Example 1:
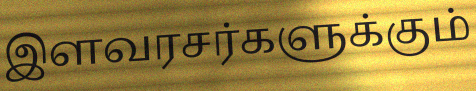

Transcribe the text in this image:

இளவரசர்களுக்கும்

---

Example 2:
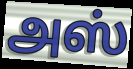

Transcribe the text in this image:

அஸ்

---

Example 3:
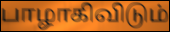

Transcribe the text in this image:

பாழாகிவிடும்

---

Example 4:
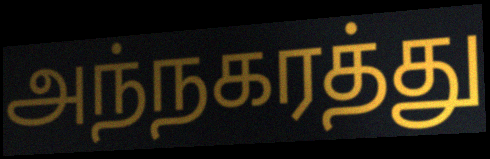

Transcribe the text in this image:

அந்நகரத்து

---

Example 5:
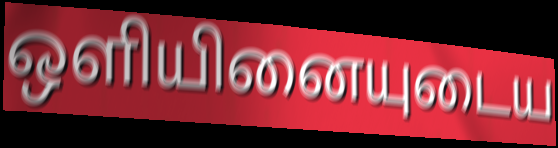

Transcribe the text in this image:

ஒளியினையுடைய